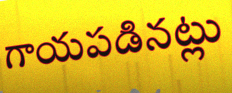
గాయపడినట్లు